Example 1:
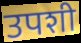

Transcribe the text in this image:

उपशी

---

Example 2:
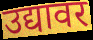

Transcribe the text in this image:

उद्यावर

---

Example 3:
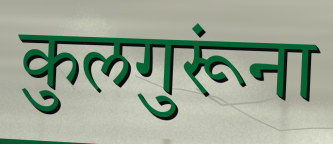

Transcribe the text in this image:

कुलगुरूंना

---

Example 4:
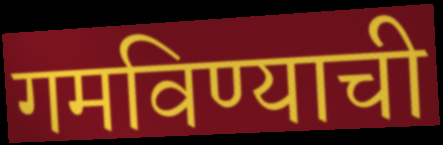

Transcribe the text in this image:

गमविण्याची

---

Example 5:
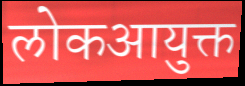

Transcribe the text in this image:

लोकआयुक्त